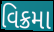
વિક્રમા